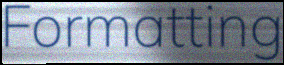
Formatting